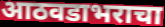
आठवडाभराचा